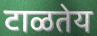
टाळतेय